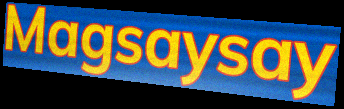
Magsaysay